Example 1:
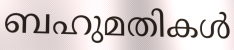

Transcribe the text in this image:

ബഹുമതികൾ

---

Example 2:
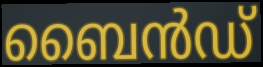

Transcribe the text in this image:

ബൈൻഡ്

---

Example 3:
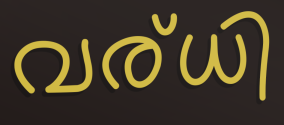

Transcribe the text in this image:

വര്ധി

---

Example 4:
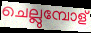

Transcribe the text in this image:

ചെല്ലുമ്പോള്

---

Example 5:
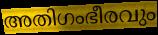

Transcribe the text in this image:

അതിഗംഭീരവും